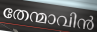
തേന്മാവിൻ